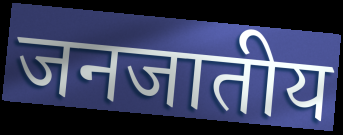
जनजातीय